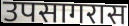
उपसागरास